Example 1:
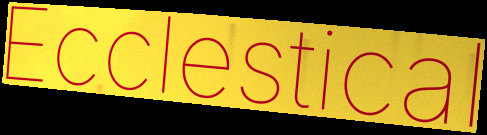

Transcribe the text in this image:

Ecclestical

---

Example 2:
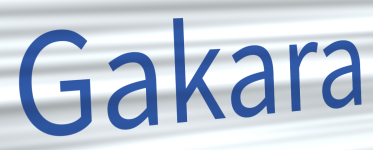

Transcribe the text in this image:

Gakara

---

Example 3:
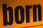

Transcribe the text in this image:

born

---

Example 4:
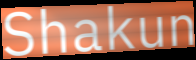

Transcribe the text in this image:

Shakun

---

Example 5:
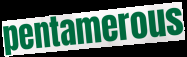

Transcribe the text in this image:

pentamerous